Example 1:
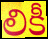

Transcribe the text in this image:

లికీ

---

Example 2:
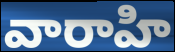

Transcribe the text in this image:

వారాహి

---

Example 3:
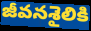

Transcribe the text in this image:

జీవనశైలికి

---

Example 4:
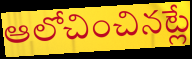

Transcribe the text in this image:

ఆలోచించినట్లే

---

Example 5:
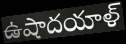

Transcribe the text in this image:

ఉషాదయాళ్